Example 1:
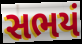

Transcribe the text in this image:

સભયં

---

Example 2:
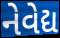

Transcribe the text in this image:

નેવેદ્ય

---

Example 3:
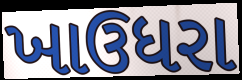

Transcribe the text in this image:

ખાઉધરા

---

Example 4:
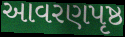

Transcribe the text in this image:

આવરણપૃષ્ઠ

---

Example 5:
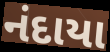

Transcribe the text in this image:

નંદાયા